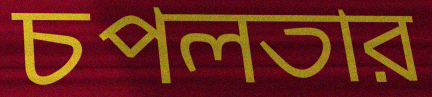
চপলতার